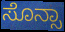
ಸೊನ್ಸಾ